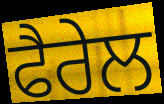
ਫੈਰੇਲ